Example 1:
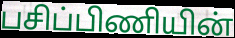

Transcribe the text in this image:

பசிப்பிணியின்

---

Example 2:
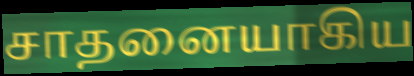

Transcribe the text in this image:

சாதனையாகிய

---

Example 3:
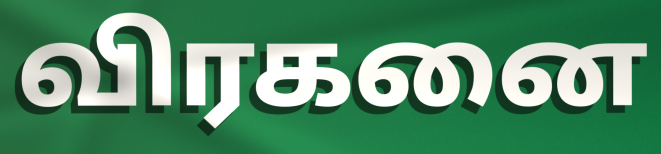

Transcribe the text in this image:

விரகனை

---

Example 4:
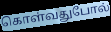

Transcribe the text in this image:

கொள்வதுபோல்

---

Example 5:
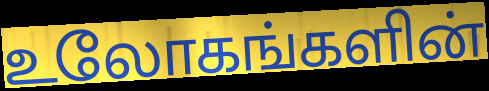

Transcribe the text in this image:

உலோகங்களின்